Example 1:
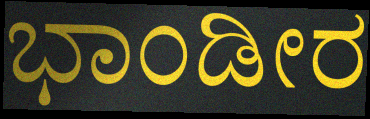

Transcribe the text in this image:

ಭಾಂಡೀರ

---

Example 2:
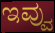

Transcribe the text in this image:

ಇವ್ವು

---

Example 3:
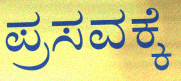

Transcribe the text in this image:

ಪ್ರಸವಕ್ಕೆ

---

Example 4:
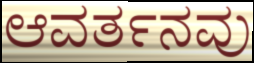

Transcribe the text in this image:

ಆವರ್ತನವು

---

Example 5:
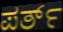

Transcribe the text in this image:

ಪರ್ತ್